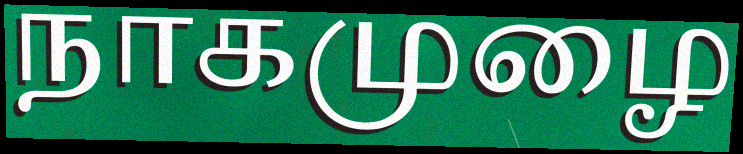
நாகமுழை